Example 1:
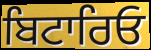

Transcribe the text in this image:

ਬਿਟਾਰਿਓ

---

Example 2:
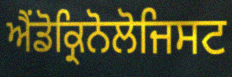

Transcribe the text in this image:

ਐਂਡੋਕ੍ਰਿਨੋਲੋਜਿਸਟ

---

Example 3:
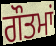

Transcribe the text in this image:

ਗੌਤਮਾਂ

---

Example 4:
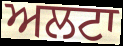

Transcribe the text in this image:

ਅਲਟਾ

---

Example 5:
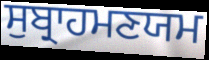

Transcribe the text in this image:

ਸੁਬ੍ਰਾਹਮਣਯਮ